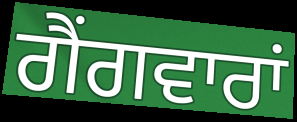
ਗੈਂਗਵਾਰਾਂ